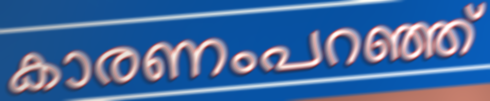
കാരണംപറഞ്ഞ്